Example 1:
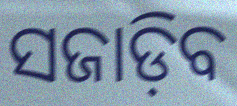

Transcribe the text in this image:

ସଜାଡ଼ିବ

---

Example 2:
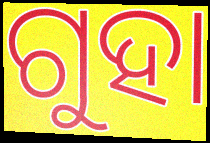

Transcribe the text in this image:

ଗୁହା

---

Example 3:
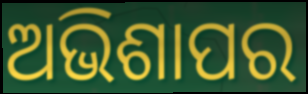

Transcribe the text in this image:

ଅଭିଶାପର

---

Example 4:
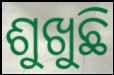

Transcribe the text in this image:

ଶୁଖୁଛି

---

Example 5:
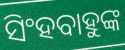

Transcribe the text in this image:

ସିଂହବାହୁଙ୍କ